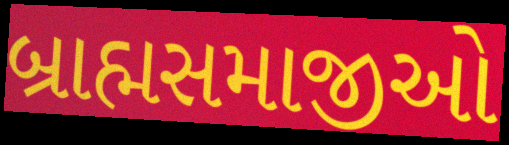
બ્રાહ્મસમાજીઓ